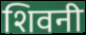
शिवनी